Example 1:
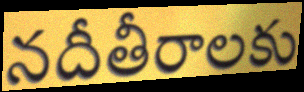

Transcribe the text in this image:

నదీతీరాలకు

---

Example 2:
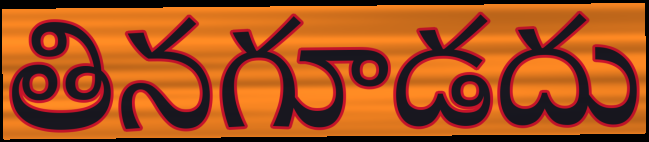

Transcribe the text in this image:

తినగూడదు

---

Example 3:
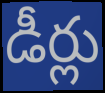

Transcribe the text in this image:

డీర్లు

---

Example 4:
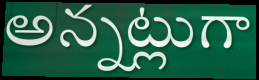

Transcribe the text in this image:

అన్నట్లుగా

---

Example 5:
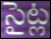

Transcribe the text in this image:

సైట్ల